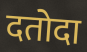
दतोदा